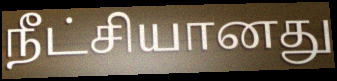
நீட்சியானது